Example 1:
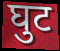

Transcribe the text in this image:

घुट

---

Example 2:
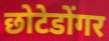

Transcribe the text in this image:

छोटेडोंगर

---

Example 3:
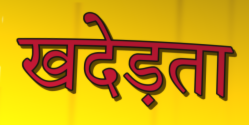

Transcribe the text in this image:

खदेड़ता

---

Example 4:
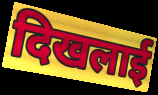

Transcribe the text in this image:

दिखलाई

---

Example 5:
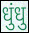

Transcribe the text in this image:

धुंधु